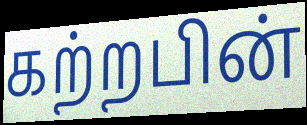
கற்றபின்